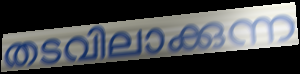
തടവിലാക്കുന്ന